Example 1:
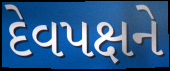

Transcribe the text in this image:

દેવપક્ષને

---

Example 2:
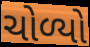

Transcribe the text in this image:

ચોળ્યો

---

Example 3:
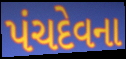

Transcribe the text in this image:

પંચદેવના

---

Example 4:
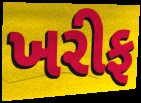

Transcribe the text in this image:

ખરીફ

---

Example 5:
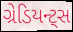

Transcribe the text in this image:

ગ્રેડિયન્ટ્સ